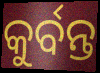
କୁର୍ବନ୍ତ